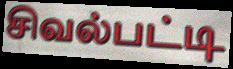
சிவல்பட்டி